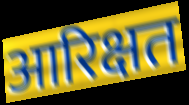
आरिक्षत